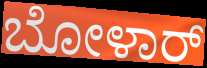
ಬೋಳಾರ್